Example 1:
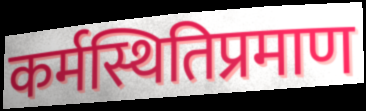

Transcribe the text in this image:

कर्मस्थितिप्रमाण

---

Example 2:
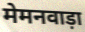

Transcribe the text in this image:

मेमनवाड़ा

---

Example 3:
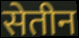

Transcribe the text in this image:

सेतीन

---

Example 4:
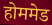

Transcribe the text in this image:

होममेड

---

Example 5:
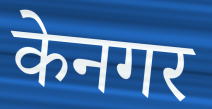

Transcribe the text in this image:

केनगर